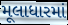
મૂલાધારમાં